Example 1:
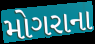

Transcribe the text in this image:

મોગરાના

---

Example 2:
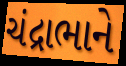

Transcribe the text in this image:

ચંદ્રાભાને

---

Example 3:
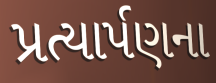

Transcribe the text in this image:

પ્રત્યાર્પણના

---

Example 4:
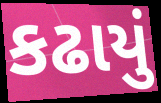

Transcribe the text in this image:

કઢાયું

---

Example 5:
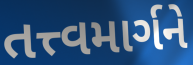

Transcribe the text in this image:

તત્ત્વમાર્ગને